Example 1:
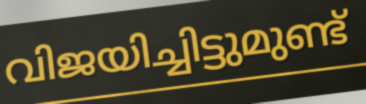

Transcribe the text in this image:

വിജയിച്ചിട്ടുമുണ്ട്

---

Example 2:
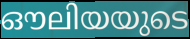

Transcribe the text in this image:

ഔലിയയുടെ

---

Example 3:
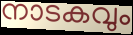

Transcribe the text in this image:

നാടകവും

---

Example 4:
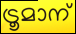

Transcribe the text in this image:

ട്രൂമാന്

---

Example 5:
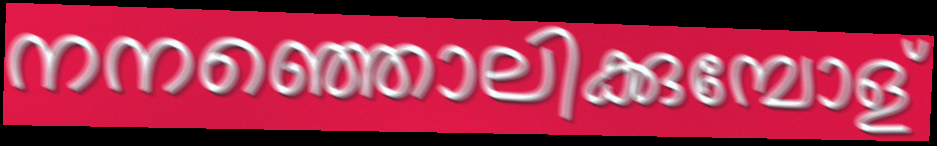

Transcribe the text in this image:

നനഞ്ഞൊലിക്കുമ്പോള്